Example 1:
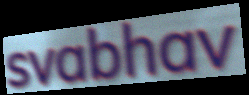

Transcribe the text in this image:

svabhav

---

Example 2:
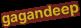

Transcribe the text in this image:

gagandeep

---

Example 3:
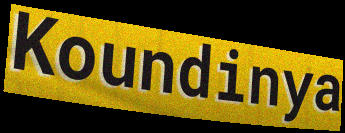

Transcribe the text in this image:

Koundinya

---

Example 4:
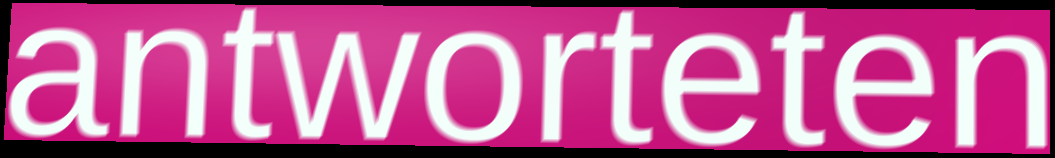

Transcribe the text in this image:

antworteten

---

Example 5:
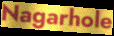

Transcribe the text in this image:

Nagarhole